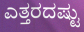
ಎತ್ತರದಷ್ಟು